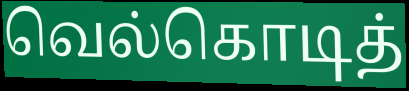
வெல்கொடித்